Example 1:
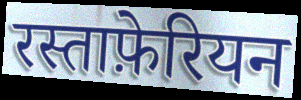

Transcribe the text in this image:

रस्ताफ़ेरियन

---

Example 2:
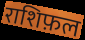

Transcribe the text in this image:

राशिफ़ल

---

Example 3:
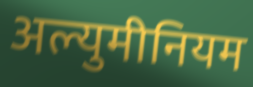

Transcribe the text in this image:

अल्युमीनियम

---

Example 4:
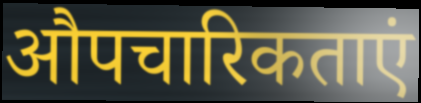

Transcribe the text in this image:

औपचारिकताएं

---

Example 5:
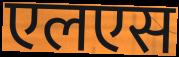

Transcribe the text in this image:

एलएस